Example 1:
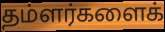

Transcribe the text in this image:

தம்ளர்களைக்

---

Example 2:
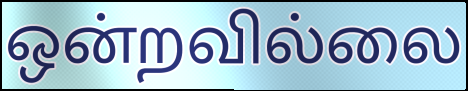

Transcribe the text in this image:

ஒன்றவில்லை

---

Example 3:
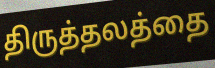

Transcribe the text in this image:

திருத்தலத்தை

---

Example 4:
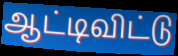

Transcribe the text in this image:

ஆட்டிவிட்டு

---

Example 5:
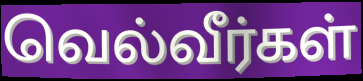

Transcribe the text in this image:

வெல்வீர்கள்